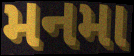
મનમા